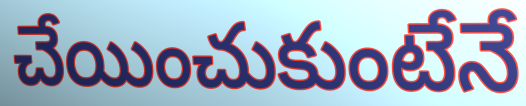
చేయించుకుంటేనే